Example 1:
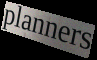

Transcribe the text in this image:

planners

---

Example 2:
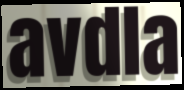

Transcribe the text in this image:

avdla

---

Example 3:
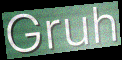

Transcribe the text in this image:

Gruh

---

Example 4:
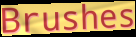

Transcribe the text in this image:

Brushes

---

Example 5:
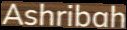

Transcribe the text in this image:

Ashribah